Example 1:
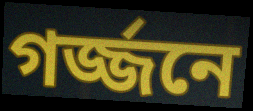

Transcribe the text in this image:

গর্জ্জনে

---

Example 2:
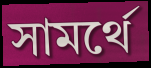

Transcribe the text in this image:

সামর্থে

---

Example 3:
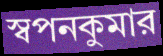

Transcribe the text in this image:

স্বপনকুমার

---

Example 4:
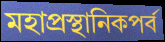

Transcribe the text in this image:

মহাপ্রস্থানিকপর্ব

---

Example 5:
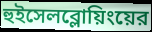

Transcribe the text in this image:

হুইসেলব্লোয়িংয়ের